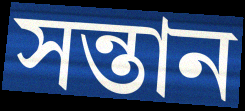
সন্তান